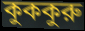
কুককুরু